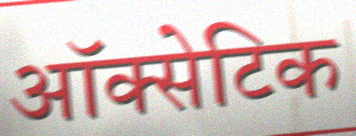
ऑक्सेटिक